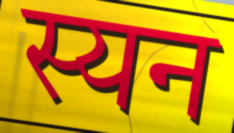
स्यन